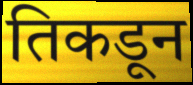
तिकडून